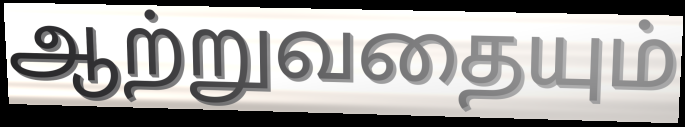
ஆற்றுவதையும்